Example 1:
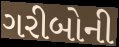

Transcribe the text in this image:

ગરીબોની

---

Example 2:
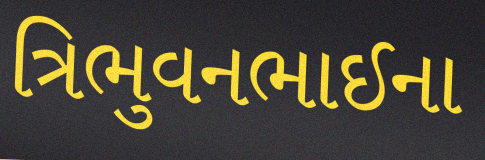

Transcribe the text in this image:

ત્રિભુવનભાઈના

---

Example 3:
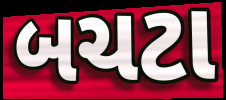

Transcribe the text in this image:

બચટા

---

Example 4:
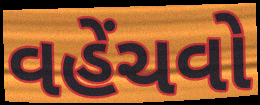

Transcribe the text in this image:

વહેંચવો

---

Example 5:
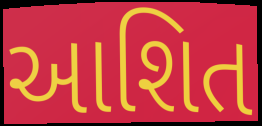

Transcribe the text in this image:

આશિત